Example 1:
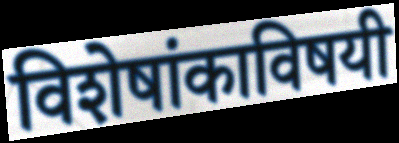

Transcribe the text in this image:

विशेषांकाविषयी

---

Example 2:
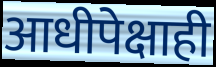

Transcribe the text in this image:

आधीपेक्षाही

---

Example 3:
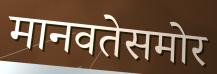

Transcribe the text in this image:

मानवतेसमोर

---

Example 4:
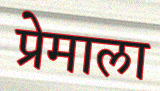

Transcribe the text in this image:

प्रेमाला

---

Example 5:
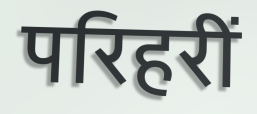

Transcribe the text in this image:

परिहरीं